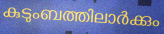
കുടുംബത്തിലാർക്കും